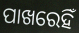
ପାଖରେହିଁ